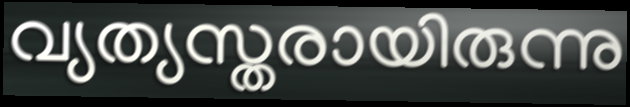
വ്യത്യസ്തരായിരുന്നു